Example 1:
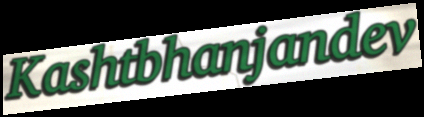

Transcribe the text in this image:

Kashtbhanjandev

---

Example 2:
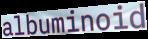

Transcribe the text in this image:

albuminoid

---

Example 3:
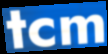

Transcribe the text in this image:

tcm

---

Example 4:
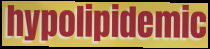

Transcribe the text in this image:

hypolipidemic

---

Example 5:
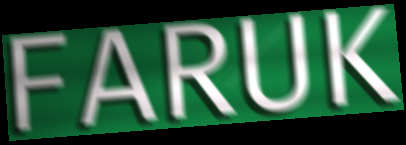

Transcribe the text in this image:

FARUK